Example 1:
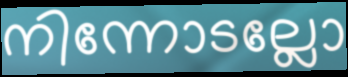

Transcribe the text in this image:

നിന്നോടല്ലോ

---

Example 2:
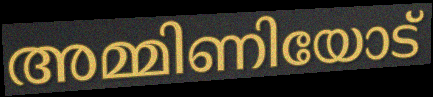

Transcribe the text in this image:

അമ്മിണിയോട്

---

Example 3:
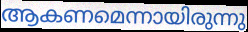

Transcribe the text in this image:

ആകണമെന്നായിരുന്നു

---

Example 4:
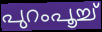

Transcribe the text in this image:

പുറംപൂച്ച്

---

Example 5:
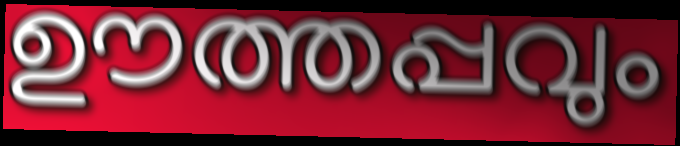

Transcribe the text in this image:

ഊത്തപ്പവും